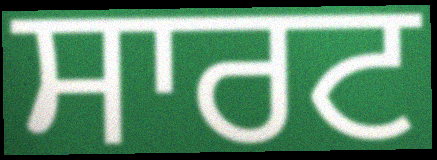
ਸਾਰਟ